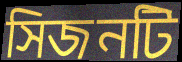
সিজনটি